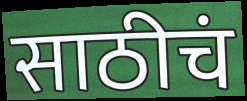
साठीचं